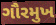
ગૌરમુખ